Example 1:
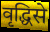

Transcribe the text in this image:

वृद्धिसे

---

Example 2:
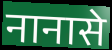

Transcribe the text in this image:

नानासे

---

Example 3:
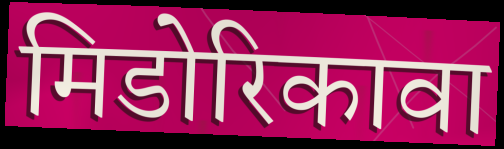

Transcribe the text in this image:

मिडोरिकावा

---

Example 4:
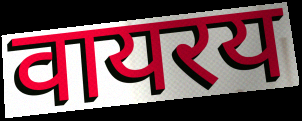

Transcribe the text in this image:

वायरय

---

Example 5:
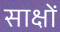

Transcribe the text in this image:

साक्षों